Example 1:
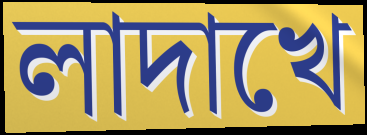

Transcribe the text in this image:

লাদাখে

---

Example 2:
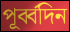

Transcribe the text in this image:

পূর্ব্বদিন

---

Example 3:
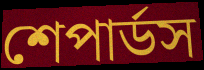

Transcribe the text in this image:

শেপার্ডস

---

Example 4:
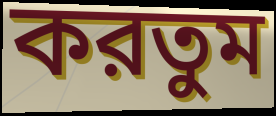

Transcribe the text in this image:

করতুম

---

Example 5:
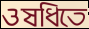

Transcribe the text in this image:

ওষধিতে